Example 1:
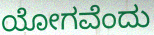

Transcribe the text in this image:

ಯೋಗವೆಂದು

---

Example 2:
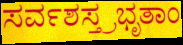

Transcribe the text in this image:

ಸರ್ವಶಸ್ತ್ರಭೃತಾಂ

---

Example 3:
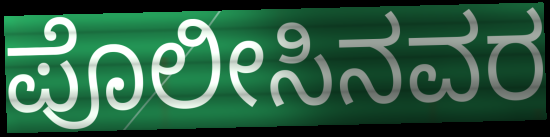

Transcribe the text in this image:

ಪೊಲೀಸಿನವರ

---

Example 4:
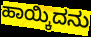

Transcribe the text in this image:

ಹಾಯ್ಕಿದನು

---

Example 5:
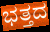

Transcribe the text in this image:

ಭತ್ತದ